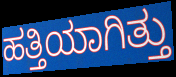
ಹತ್ತಿಯಾಗಿತ್ತು